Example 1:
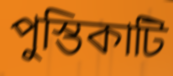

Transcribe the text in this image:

পুস্তিকাটি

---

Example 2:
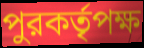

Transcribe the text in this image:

পুরকর্তৃপক্ষ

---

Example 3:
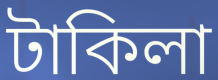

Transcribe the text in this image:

টাকিলা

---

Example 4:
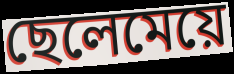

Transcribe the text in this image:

ছেলেমেয়ে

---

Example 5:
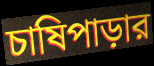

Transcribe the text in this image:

চাষিপাড়ার